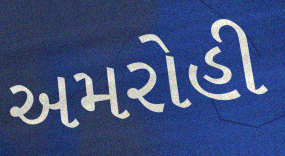
અમરોહી